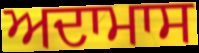
ਅਦਾਮਾਸ